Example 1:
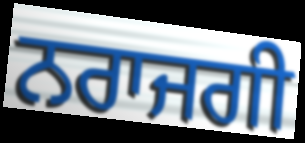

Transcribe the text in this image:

ਨਰਾਜਗੀ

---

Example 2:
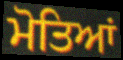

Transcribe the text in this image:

ਮੋਤਿਆਂ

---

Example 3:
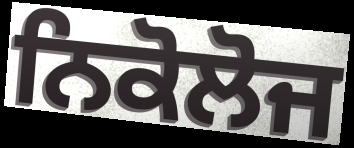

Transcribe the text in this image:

ਨਿਕੋਲੋਜ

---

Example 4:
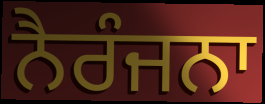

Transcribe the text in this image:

ਨੈਰੰਜਨਾ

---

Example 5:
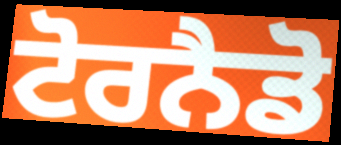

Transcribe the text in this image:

ਟੋਰਨੈਡੋ